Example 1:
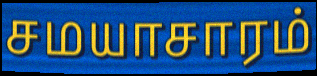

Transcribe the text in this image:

சமயாசாரம்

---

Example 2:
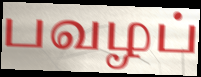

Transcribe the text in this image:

பவழப்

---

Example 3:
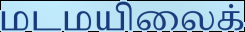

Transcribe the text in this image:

மடமயிலைக்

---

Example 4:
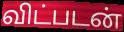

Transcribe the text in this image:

விட்படன்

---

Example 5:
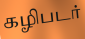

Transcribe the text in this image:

கழிபடர்